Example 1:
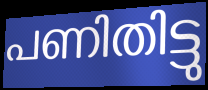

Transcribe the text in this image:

പണിതിട്ടു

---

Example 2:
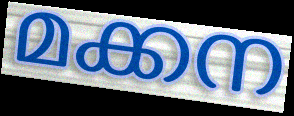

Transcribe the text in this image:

മക്കന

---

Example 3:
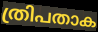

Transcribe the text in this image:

ത്രിപതാക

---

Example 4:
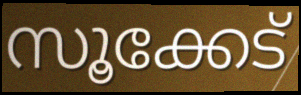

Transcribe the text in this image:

സൂക്കേട്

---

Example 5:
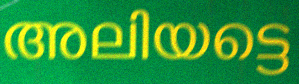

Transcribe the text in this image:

അലിയട്ടെ